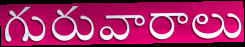
గురువారాలు